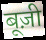
बूज़ी